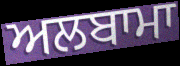
ਅਲਬਾਮਾ